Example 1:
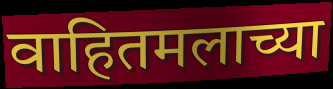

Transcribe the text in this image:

वाहितमलाच्या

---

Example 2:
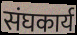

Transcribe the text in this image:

संघकार्य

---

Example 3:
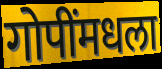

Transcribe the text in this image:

गोपींमधला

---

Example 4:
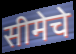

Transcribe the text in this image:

सीमेचे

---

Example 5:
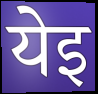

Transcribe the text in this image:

येइ